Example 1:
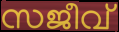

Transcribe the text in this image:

സജീവ്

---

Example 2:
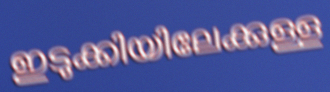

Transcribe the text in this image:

ഇടുക്കിയിലേക്കുള്ള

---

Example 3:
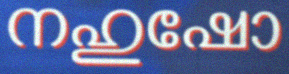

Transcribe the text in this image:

നഹുഷോ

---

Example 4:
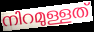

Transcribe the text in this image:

നിറമുള്ളത്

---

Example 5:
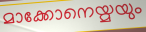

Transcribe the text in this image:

മാക്കോനെയ്മയും